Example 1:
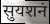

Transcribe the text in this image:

सुयशनं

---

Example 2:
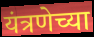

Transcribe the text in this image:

यंत्रणेच्या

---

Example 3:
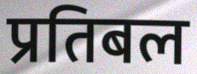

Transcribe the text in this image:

प्रतिबल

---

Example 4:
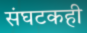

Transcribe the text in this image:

संघटकही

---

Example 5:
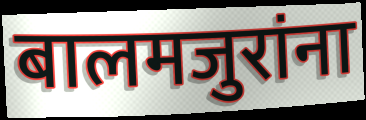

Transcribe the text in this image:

बालमजुरांना